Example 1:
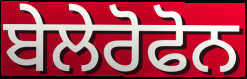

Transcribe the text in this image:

ਬੇਲੇਰੋਫੋਨ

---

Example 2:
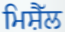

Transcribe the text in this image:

ਮਿਸ਼ੈੱਲ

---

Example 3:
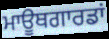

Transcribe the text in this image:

ਮਾਊਥਗਾਰਡਾਂ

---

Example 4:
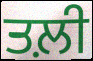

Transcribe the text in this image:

ਤਲ਼ੀ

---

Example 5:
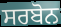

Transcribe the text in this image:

ਸਰਬੋਨ